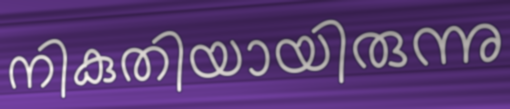
നികുതിയായിരുന്നു